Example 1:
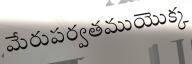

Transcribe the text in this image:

మేరుపర్వతముయొక్క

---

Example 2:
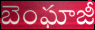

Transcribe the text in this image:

బెంఘాజీ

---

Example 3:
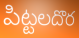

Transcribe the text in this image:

పిట్టలదొర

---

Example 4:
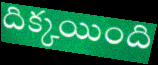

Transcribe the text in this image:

దిక్కయింది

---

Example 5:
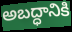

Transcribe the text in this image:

అబద్ధానికి